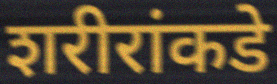
शरीरांकडे